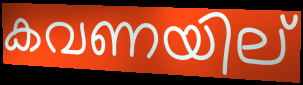
കവണയില്